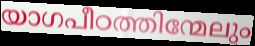
യാഗപീഠത്തിന്മേലും